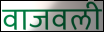
वाजवली